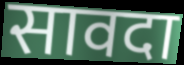
सावदा